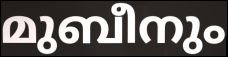
മുബീനും